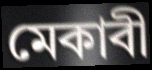
মেকাবী